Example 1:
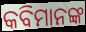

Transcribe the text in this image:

କବିମାନଙ୍କ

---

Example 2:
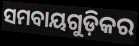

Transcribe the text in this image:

ସମବାୟଗୁଡ଼ିକର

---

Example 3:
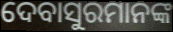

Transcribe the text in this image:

ଦେବାସୁରମାନଙ୍କ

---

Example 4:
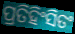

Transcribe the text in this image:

ପ୍ରତିହିଂସିତଂ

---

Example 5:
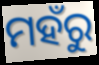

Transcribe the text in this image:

ମହଁରୁ